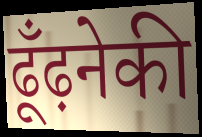
ढूँढ़नेकी